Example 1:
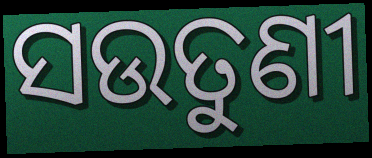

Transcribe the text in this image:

ସଉତୁଣୀ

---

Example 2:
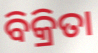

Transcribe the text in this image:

ବିକ୍ରିତା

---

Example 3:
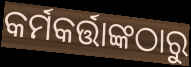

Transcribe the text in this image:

କର୍ମକର୍ତ୍ତାଙ୍କଠାରୁ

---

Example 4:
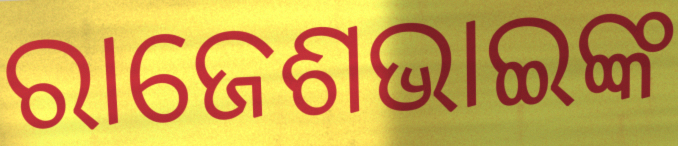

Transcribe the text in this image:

ରାଜେଶଭାଇଙ୍କ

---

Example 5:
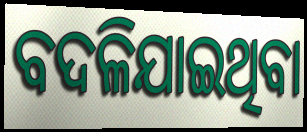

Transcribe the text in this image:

ବଦଳିଯାଇଥିବା